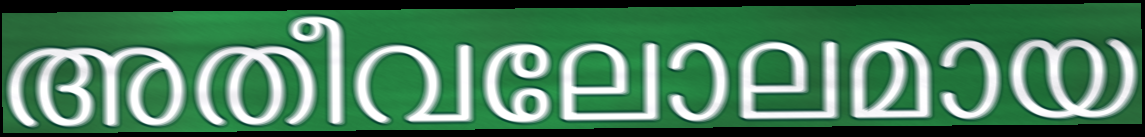
അതീവലോലമായ